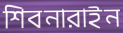
শিবনারাইন